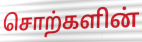
சொற்களின்